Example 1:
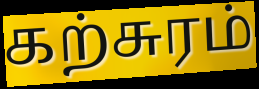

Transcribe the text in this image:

கற்சுரம்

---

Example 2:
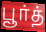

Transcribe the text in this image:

பூர்த்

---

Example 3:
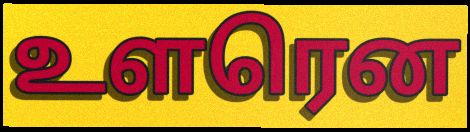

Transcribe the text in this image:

உளரென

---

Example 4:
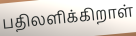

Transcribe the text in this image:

பதிலளிக்கிறாள்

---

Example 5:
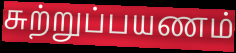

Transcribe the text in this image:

சுற்றுப்பயணம்